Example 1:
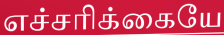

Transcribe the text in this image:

எச்சரிக்கையே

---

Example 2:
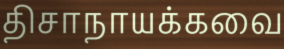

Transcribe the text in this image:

திசாநாயக்கவை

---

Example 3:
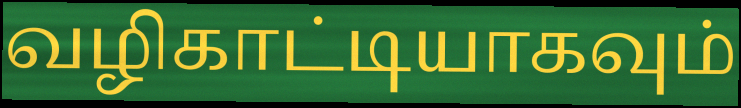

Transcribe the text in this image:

வழிகாட்டியாகவும்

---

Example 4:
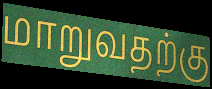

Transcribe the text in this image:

மாறுவதற்கு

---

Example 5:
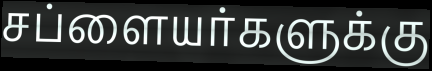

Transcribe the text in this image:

சப்ளையர்களுக்கு